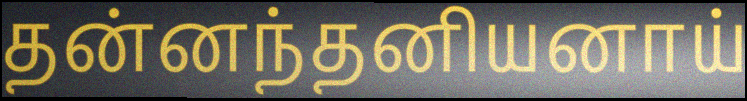
தன்னந்தனியனாய்